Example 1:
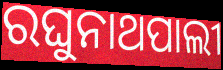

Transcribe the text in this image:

ରଘୁନାଥପାଲୀ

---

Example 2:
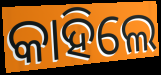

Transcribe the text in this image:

କାହିଲେ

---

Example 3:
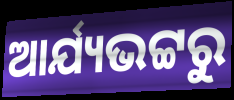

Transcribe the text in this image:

ଆର୍ଯ୍ୟଭଟ୍ଟରୁ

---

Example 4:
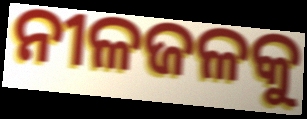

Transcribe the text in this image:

ନୀଳଜଳକୁ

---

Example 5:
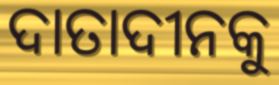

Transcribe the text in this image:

ଦାତାଦୀନକୁ